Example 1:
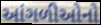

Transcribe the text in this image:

આંગળીઓનો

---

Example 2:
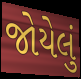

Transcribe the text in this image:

જોયેલું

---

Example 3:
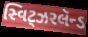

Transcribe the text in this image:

સ્વિટ્ઝરલૅન્ડ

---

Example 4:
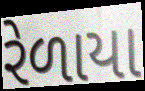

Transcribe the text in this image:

રેળાયા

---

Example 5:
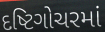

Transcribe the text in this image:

દષ્ટિગોચરમાં